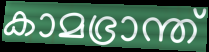
കാമഭ്രാന്ത്